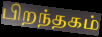
பிறந்தகம்